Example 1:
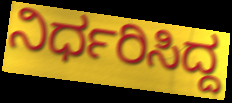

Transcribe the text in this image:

ನಿರ್ಧರಿಸಿದ್ದ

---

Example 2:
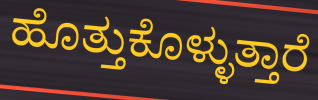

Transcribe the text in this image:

ಹೊತ್ತುಕೊಳ್ಳುತ್ತಾರೆ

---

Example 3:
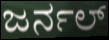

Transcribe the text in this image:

ಜರ್ನಲ್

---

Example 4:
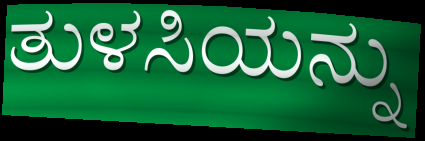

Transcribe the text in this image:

ತುಳಸಿಯನ್ನು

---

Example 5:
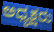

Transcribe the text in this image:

ಅಧ್ಯಕ್ಷರು